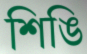
শিঙি